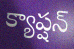
క్యాప్షన్